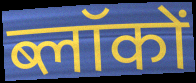
ब्लॉकों